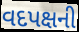
વદપક્ષની